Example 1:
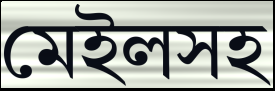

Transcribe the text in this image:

মেইলসহ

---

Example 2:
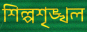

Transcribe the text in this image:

শিল্পশৃঙ্খল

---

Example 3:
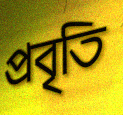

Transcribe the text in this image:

প্রবৃতি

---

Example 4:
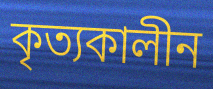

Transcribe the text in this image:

কৃত্যকালীন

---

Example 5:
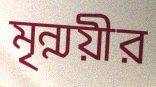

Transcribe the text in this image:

মৃন্ময়ীর